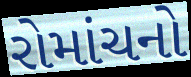
રોમાંચનો